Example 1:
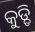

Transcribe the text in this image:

କୁଡ୍ଡି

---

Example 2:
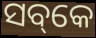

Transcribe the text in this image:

ସବ୍‌କେ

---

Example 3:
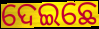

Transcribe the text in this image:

ଦେଇଛେ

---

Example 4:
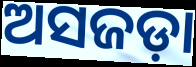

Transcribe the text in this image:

ଅସଜଡ଼ା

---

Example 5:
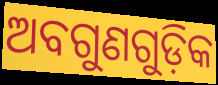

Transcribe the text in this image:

ଅବଗୁଣଗୁଡ଼ିକ